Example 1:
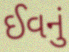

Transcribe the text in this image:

ઈવનું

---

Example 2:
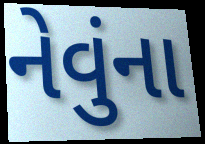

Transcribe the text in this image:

નેવુંના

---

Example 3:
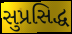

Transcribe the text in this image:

સુપ્રસિદ્ધ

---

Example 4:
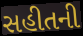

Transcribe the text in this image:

સહીતની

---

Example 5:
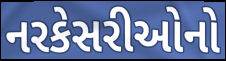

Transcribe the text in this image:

નરકેસરીઓનો